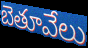
బెతూవేలు